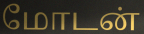
மோடன்